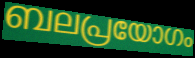
ബലപ്രയോഗം